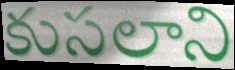
కుసలాని